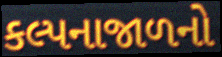
કલ્પનાજાળનો